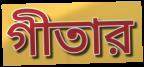
গীতার